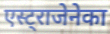
एस्ट्राजेनेका